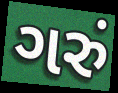
ગરું